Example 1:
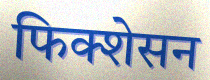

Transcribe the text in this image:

फिक्शेसन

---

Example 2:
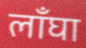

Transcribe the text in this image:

लाँघा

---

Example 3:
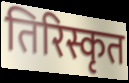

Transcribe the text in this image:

तिरिस्कृत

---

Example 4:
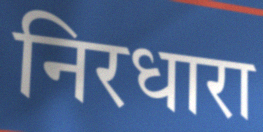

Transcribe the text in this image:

निरधारा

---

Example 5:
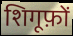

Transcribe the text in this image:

शिगूफ़ों